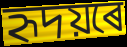
হৃদয়ৰে